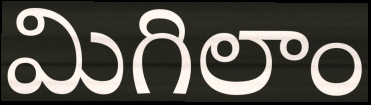
మిగిలాం